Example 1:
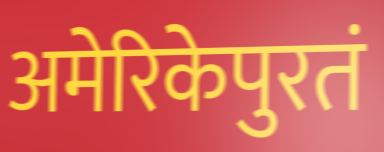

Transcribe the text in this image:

अमेरिकेपुरतं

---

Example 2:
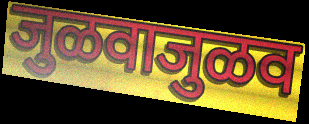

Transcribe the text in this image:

जुळवाजुळव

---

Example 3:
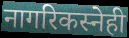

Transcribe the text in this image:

नागरिकस्नेही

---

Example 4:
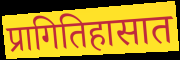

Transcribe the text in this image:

प्रागितिहासात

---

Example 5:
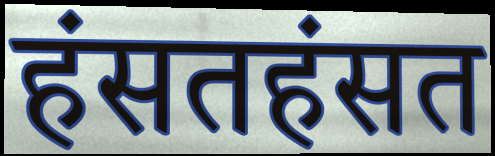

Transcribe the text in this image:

हंसतहंसत